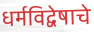
धर्मविद्वेषाचे